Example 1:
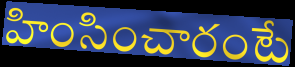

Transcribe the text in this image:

హింసించారంటే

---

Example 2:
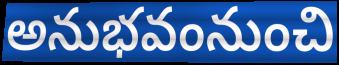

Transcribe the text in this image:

అనుభవంనుంచి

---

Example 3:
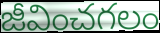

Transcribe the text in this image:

జీవించగలం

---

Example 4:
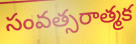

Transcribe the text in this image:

సంవత్సరాత్మక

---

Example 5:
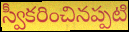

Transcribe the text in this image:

స్వీకరించినప్పటి